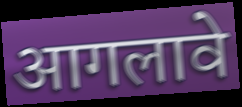
आगलावे